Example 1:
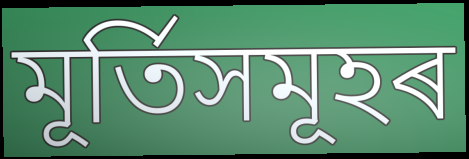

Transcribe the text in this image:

মূৰ্তিসমূহৰ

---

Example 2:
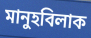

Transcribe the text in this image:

মানুহবিলাক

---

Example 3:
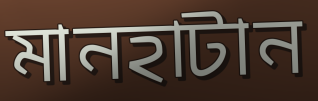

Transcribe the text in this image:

মানহাটান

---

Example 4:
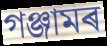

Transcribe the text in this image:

গঞ্জামৰ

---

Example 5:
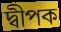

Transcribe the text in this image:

দ্বীপক